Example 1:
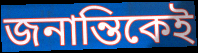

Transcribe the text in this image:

জনান্তিকেই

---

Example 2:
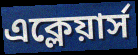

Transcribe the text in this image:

এক্লেয়ার্স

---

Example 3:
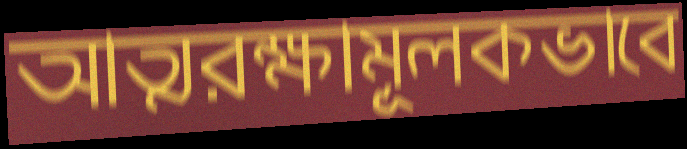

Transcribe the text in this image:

আত্মরক্ষামূলকভাবে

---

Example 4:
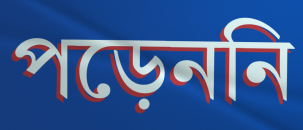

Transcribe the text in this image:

পড়েননি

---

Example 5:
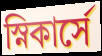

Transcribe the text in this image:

স্নিকার্সে